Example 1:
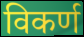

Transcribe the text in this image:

विकर्ण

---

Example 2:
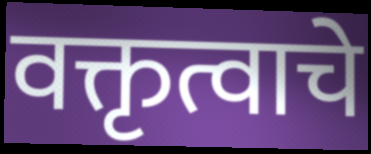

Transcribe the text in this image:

वक्तृत्वाचे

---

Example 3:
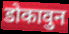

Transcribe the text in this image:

डोकावुन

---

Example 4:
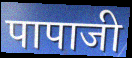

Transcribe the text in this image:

पापाजी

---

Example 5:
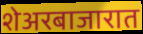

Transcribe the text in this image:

शेअरबाजारात